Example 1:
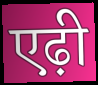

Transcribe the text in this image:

एढ़ी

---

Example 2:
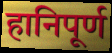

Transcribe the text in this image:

हानिपूर्ण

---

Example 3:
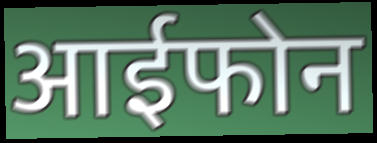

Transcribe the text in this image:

आईफोन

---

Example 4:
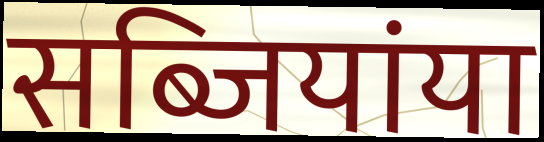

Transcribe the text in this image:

सब्जियांया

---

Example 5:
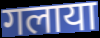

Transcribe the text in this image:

गलाया